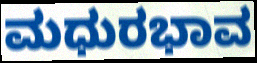
ಮಧುರಭಾವ